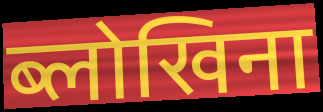
ब्लोखिना